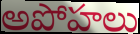
అపోహలు